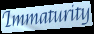
Immaturity